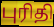
புரிதி